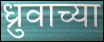
ध्रुवाच्या